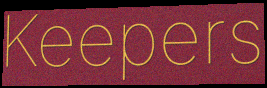
Keepers